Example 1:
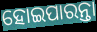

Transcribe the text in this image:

ହୋଇପାରନ୍ତା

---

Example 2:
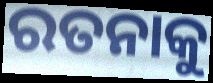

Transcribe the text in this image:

ରତନାକୁ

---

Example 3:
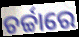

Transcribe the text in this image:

ଚର୍ଚ୍ଚାରେ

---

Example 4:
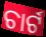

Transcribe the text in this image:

ଚାର୍ଟ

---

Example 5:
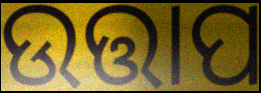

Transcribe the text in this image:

ଉତ୍ତାପ